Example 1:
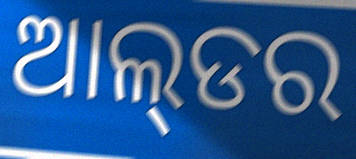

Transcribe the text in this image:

ଆଲ୍‌ଡର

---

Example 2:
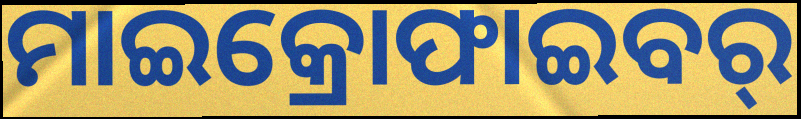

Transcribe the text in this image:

ମାଇକ୍ରୋଫାଇବର୍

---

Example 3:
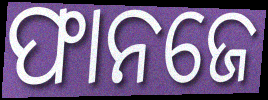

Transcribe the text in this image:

ଫାନଜେ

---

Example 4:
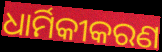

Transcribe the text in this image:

ଧାର୍ମିକୀକରଣ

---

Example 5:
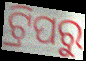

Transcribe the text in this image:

ଟ୍ରିପରୁ